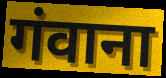
गंवाना